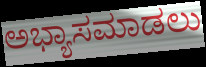
ಅಭ್ಯಾಸಮಾಡಲು